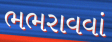
ભભરાવવાં